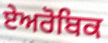
ਏਅਰੋਬਿਕ